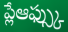
ప్లేఆఫ్స్కు